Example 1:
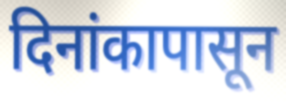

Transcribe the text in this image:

दिनांकापासून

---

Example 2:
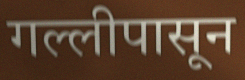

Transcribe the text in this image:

गल्लीपासून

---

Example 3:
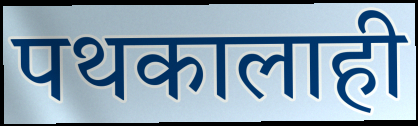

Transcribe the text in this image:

पथकालाही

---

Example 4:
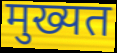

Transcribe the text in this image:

मुख्यत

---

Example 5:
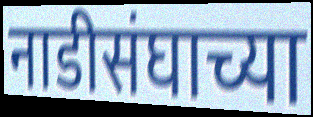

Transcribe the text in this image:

नाडीसंघाच्या